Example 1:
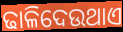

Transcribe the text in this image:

ଢାଳିଦେଉଥାଏ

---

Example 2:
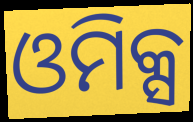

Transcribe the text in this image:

ଓମିକ୍ସ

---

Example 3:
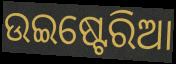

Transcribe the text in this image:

ଉଇଷ୍ଟେରିଆ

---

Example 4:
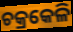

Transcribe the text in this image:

ଚକ୍ରକେଳି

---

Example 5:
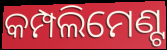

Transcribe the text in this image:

କମ୍ପଲିମେଣ୍ଟ